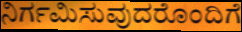
ನಿರ್ಗಮಿಸುವುದರೊಂದಿಗೆ